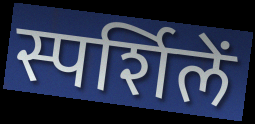
स्पर्शिलें